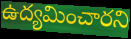
ఉద్యమించారని